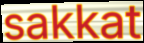
sakkat